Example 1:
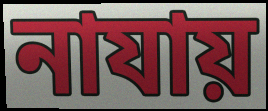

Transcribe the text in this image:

নাযায়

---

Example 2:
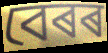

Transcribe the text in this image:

বেৰৰ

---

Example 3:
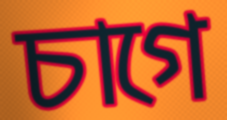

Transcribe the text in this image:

চাগে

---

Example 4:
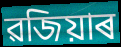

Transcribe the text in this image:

ৱজিয়াৰ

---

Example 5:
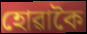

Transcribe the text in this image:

হোৱাকৈ